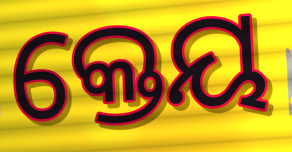
କ୍ତେୟ